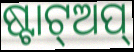
ଷ୍ଟାଟ୍ଅପ୍